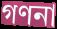
গণনা